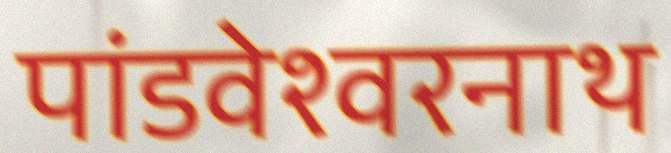
पांडवेश्वरनाथ